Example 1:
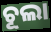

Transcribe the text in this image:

ଚୂଲା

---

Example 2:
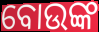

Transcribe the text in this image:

ବୋଉଙ୍କ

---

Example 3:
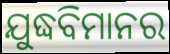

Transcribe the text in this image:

ଯୁଦ୍ଧବିମାନର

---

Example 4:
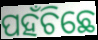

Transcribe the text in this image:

ପହଁଚିଛେ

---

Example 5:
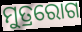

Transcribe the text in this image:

ମୁତ୍ରରୋଗ